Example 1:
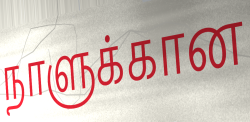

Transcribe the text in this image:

நாளுக்கான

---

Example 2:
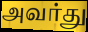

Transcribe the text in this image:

அவர்து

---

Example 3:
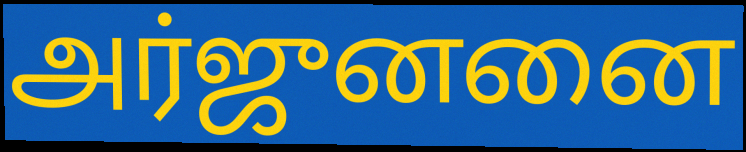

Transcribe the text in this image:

அர்ஜுனனை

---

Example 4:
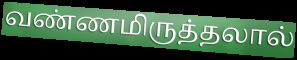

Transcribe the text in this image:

வண்ணமிருத்தலால்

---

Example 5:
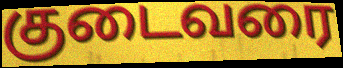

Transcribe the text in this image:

குடைவரை